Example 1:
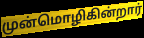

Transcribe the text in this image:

முன்மொழிகின்றார்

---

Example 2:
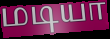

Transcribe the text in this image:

மடியா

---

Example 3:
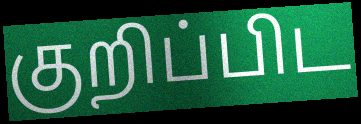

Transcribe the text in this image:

குறிப்பிட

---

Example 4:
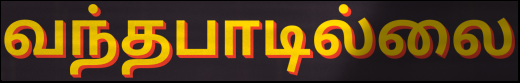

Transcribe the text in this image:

வந்தபாடில்லை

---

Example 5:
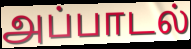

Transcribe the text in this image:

அப்பாடல்